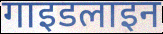
गाइडलाइन